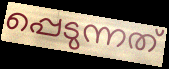
പ്പെടുന്നത്